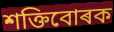
শক্তিবোৰক